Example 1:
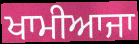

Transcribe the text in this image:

ਖਾਮੀਆਜਾ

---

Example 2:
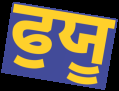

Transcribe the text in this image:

ਫੁਯੂ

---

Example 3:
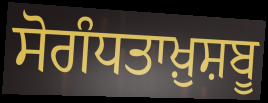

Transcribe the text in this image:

ਸੋਗੰਧਤਾਖ਼ੁਸ਼ਬੂ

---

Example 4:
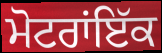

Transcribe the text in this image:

ਮੋਟਰਾਂਇੱਕ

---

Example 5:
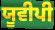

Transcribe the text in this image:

ਯੂਵੀਪੀ